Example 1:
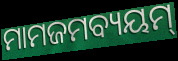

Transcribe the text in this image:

ମାମଜମବ୍ୟୟମ୍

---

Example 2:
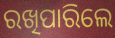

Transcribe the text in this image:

ରଖିପାରିଲେ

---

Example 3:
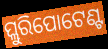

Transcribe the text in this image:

ପ୍ଲୁରିପୋଟେଣ୍ଟ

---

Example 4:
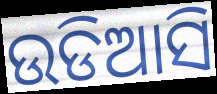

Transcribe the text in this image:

ଉଡିଆସି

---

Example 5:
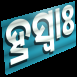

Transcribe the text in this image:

ହ୍ରସ୍ଵାଃ